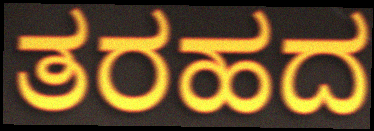
ತರಹದ